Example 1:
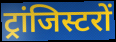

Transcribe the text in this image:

ट्रांजिस्टरों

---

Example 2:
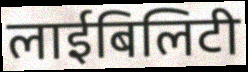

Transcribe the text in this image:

लाईबिलिटी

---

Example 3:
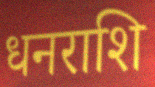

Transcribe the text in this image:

धनराशि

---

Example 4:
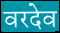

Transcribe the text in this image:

वरदेव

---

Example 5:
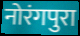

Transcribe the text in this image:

नोरंगपुरा